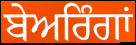
ਬੇਅਰਿੰਗਾਂ